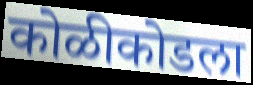
कोळीकोडला